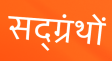
सद्ग्रंथों